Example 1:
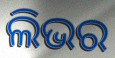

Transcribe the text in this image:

ଲିଭର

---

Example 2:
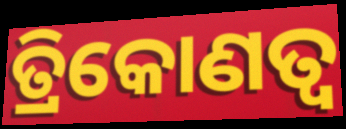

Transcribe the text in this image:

ତ୍ରିକୋଣତ୍ଵ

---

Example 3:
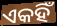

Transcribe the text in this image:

ଏକହିଁ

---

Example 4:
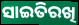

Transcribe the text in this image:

ସାଇତିରଖି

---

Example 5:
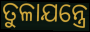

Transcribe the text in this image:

ତୁଳାଯନ୍ତ୍ରେ